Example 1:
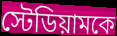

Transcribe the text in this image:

স্টেডিয়ামকে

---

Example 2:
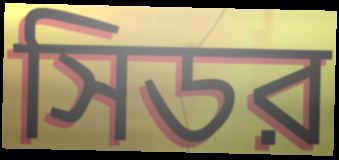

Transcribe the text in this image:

সিডর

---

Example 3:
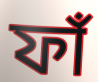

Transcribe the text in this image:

ফাঁ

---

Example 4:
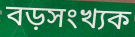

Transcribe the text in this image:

বড়সংখ্যক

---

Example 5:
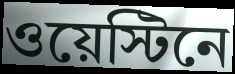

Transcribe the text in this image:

ওয়েস্টিনে